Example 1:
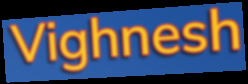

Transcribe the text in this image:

Vighnesh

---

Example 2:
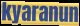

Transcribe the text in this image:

kyaranun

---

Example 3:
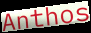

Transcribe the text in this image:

Anthos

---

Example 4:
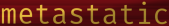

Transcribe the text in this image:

metastatic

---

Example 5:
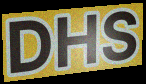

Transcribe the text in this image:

DHS